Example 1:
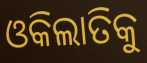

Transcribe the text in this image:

ଓକିଲାତିକୁ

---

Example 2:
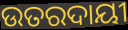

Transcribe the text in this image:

ଉତରଦାୟୀ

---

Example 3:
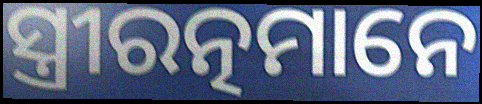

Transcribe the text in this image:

ସ୍ତ୍ରୀରତ୍ନମାନେ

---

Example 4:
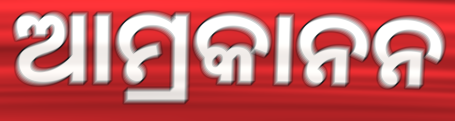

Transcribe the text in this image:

ଆମ୍ରକାନନ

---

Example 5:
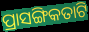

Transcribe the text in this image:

ପ୍ରାସଙ୍ଗିକତାଟି